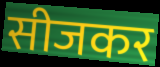
सीजकर